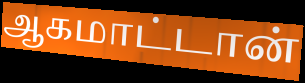
ஆகமாட்டான்